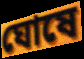
ঘোষে